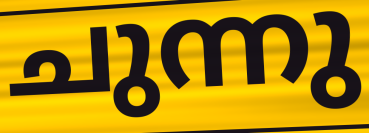
ചുന്നു